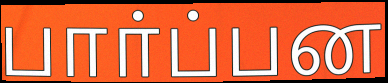
பார்ப்பன